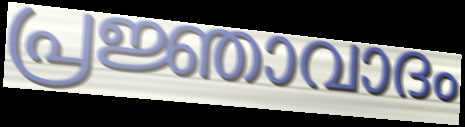
പ്രജ്ഞാവാദം